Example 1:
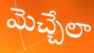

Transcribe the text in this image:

మెచ్చేలా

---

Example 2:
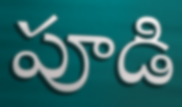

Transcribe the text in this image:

పూడి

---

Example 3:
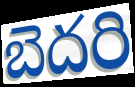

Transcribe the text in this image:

బెదరి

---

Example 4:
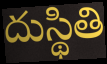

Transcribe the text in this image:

దుస్థితి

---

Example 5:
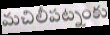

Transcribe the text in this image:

మచిలీపట్నంకు